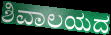
ಶಿವಾಲಯದ